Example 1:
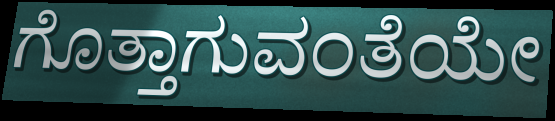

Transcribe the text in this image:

ಗೊತ್ತಾಗುವಂತೆಯೇ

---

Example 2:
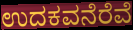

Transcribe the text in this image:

ಉದಕವನೆರೆವೆ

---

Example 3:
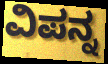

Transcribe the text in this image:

ವಿಪನ್ನ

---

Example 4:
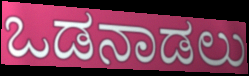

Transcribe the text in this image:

ಒಡನಾಡಲು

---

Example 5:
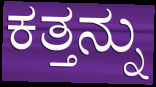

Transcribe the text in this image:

ಕತ್ತನ್ನು